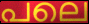
പലെ